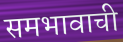
समभावाची